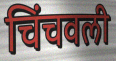
चिंचवली